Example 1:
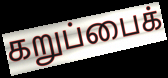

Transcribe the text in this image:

கறுப்பைக்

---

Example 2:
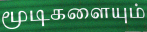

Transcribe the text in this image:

மூடிகளையும்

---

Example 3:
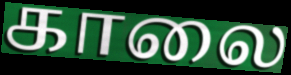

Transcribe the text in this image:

காலை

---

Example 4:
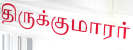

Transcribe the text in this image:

திருக்குமாரர்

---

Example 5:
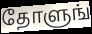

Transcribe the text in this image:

தோளுங்